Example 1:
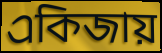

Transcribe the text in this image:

একিজায়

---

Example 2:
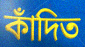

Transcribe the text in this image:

কাঁদিত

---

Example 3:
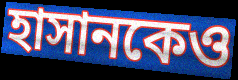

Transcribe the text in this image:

হাসানকেও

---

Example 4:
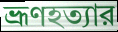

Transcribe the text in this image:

ভ্রূণহত্যার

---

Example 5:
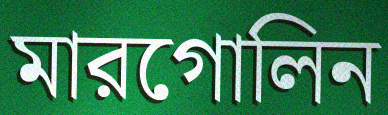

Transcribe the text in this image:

মারগোলিন